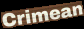
Crimean